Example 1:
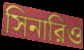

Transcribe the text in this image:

সিনারিও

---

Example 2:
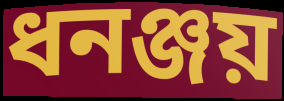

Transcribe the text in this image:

ধনঞ্জয়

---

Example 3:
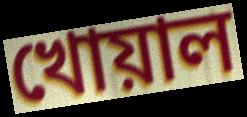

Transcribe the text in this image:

খোয়াল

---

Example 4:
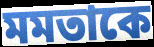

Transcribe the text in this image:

মমতাকে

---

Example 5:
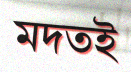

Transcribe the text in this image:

মদতই